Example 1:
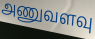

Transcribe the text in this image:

அணுவளவு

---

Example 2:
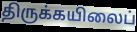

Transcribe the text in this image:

திருக்கயிலைப்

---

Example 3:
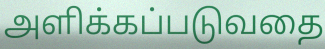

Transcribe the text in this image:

அளிக்கப்படுவதை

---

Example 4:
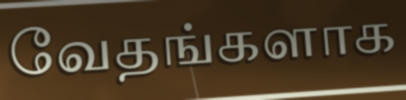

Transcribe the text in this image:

வேதங்களாக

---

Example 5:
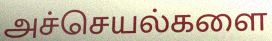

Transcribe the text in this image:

அச்செயல்களை